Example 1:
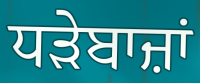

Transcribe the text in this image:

ਧੜੇਬਾਜ਼ਾਂ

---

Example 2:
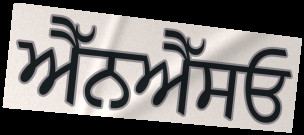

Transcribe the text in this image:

ਐੱਨਐੱਸਓ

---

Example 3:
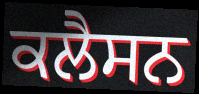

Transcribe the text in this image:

ਕਲੈਸਨ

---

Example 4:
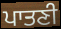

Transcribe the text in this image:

ਪਾਤਣੀ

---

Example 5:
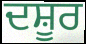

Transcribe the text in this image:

ਦਸ਼ੂਰ